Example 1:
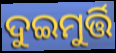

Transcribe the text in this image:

ଦୁଇମୁର୍ତ୍ତି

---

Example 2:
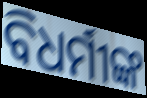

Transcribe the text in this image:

ବିଧର୍ମୀଙ୍କ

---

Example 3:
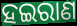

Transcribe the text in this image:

ହଇରାଣ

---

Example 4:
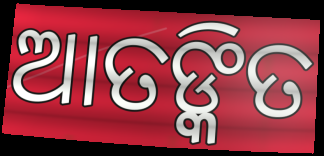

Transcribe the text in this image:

ଆତଙ୍କିତ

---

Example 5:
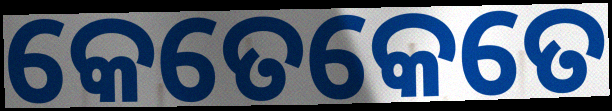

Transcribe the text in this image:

କେତେକେତେ